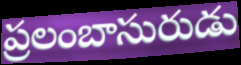
ప్రలంబాసురుడు